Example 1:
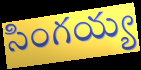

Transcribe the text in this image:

సింగయ్య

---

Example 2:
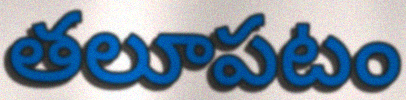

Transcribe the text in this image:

తలూపటం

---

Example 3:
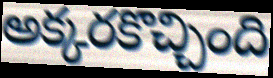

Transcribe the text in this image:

అక్కరకొచ్చింది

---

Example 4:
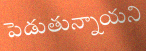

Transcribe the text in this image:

పెడుతున్నాయని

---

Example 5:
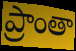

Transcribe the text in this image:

ప్రాంతా